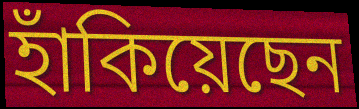
হাঁকিয়েছেন